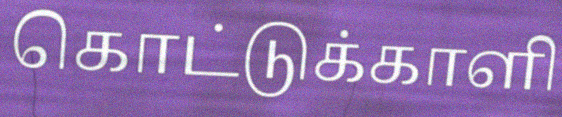
கொட்டுக்காளி